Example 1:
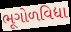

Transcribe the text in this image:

ભૂગોળવિદ્યા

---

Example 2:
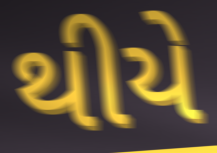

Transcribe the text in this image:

થીયે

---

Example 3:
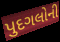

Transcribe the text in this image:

પુદગલોની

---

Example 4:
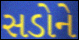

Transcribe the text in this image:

સડોને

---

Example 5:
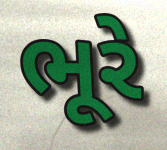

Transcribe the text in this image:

ભૂરે